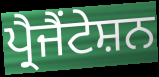
ਪ੍ਰੈਜੈਂਟੇਸ਼ਨ